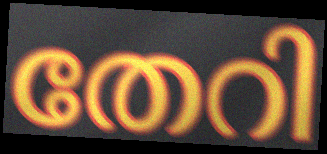
തേറി